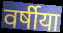
वर्षीया